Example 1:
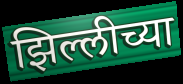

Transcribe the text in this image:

झिल्लीच्या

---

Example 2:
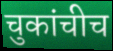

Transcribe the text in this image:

चुकांचीच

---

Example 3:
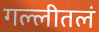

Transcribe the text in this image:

गल्लीतलं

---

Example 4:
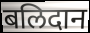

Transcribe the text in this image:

बलिदान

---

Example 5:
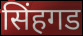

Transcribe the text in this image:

सिंहगड